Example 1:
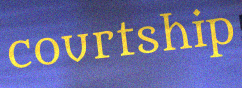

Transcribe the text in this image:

courtship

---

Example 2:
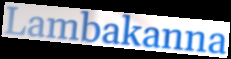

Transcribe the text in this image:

Lambakanna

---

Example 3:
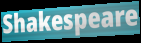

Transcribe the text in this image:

Shakespeare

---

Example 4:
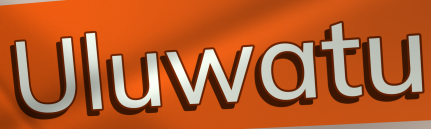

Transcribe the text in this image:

Uluwatu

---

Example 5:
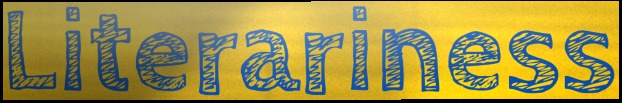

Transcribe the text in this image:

Literariness